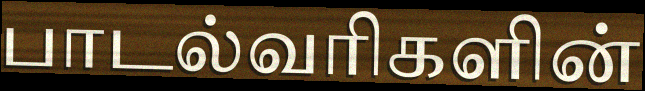
பாடல்வரிகளின்